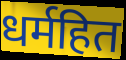
धर्महित